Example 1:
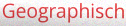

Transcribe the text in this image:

Geographisch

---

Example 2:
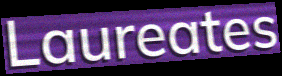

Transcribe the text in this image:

Laureates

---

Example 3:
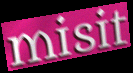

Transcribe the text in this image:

misit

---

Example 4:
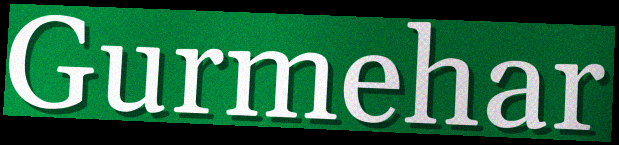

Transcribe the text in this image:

Gurmehar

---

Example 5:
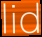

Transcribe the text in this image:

lid